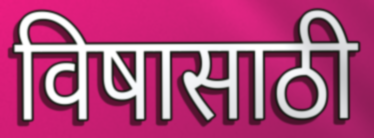
विषासाठी